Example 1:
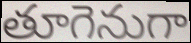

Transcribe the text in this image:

తూగెనుగా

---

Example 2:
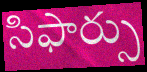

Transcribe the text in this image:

సిఫార్సు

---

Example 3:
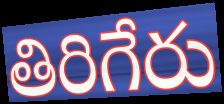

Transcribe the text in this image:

తిరిగేరు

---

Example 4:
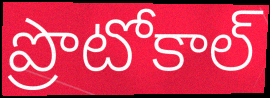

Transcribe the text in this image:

ప్రొటోకాల్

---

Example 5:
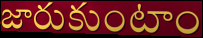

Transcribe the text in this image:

జారుకుంటాం